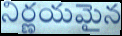
నిర్ణయమైన